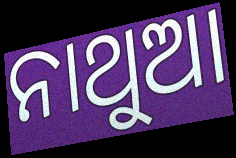
ନାଥୁଆ